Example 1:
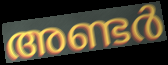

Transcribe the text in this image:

അണ്ടർ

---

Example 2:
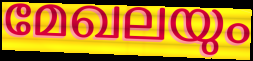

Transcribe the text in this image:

മേഖലയും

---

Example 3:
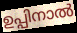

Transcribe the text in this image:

ഉപ്പിനാൽ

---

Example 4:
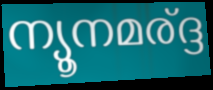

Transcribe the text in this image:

ന്യൂനമര്ദ്ദ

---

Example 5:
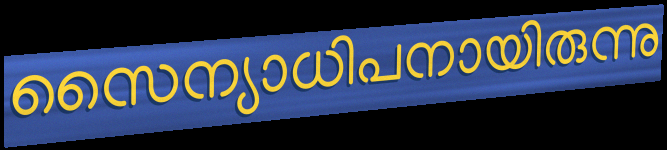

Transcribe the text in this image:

സൈന്യാധിപനായിരുന്നു